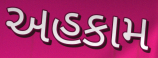
અહકામ